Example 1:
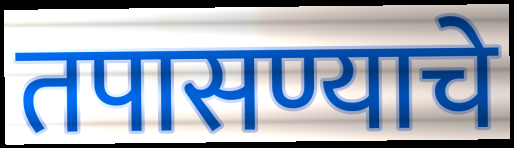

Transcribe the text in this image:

तपासण्याचे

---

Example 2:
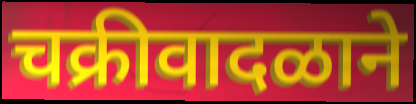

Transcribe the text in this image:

चक्रीवादळाने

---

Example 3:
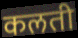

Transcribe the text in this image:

कलती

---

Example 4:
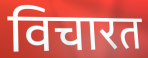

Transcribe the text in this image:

विचारत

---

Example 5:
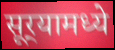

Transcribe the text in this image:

सूर्यामध्ये